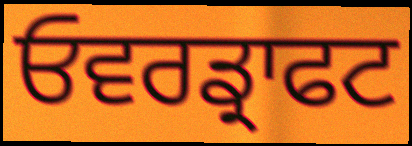
ਓਵਰਡ੍ਰਾਫਟ